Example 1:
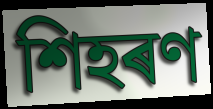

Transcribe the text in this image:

শিহৰণ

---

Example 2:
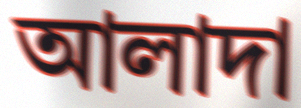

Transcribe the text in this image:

আলাদা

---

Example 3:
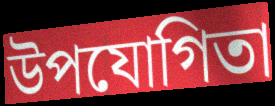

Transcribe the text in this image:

উপযোগিতা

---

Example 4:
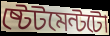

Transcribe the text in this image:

ষ্টেটমেন্টটো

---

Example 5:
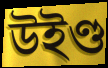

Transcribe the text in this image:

উইণ্ড